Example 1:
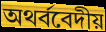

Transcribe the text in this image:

অথর্ববেদীয়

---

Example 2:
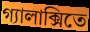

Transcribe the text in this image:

গ্যালাক্সিতে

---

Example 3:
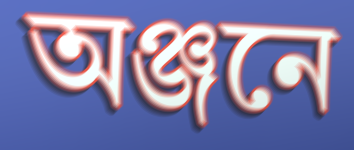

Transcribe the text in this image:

অঞ্জনে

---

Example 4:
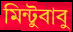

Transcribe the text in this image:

মিন্টুবাবু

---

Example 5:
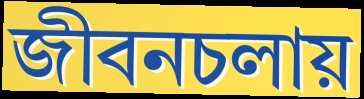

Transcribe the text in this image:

জীবনচলায়